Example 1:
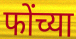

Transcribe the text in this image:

फोंच्या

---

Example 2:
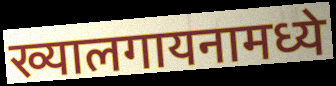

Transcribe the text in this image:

ख्यालगायनामध्ये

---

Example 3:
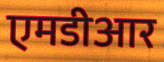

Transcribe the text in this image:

एमडीआर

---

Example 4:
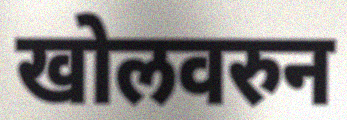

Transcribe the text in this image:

खोलवरुन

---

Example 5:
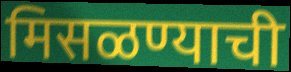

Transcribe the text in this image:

मिसळण्याची